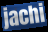
jachi